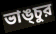
ভাঙ্চুর